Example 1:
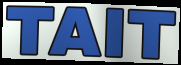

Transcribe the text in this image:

TAIT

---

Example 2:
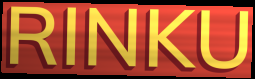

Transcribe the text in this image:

RINKU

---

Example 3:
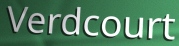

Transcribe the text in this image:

Verdcourt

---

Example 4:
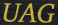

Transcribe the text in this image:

UAG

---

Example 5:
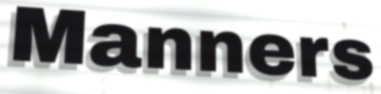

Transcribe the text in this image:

Manners